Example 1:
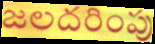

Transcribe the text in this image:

జలదరింపు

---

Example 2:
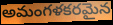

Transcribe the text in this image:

అమంగళకరమైన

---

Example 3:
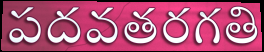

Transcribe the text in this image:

పదవతరగతి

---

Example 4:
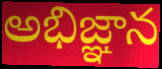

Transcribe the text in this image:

అభిజ్ఞాన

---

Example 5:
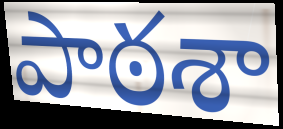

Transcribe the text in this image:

పాఠశా